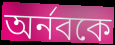
অর্নবকে